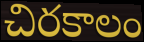
చిరకాలం